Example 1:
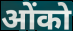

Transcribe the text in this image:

ओंको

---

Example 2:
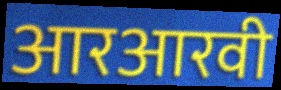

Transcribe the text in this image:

आरआरवी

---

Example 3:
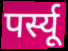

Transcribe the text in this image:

पर्स्यू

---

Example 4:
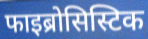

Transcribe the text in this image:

फाइब्रोसिस्टिक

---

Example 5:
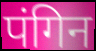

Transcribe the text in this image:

पंगिन